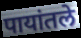
पायांतले